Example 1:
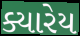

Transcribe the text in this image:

ક્યારેય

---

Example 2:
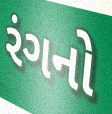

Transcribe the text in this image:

રંગનો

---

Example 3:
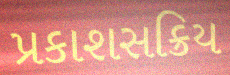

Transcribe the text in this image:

પ્રકાશસક્રિય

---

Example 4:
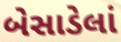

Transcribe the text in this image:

બેસાડેલાં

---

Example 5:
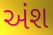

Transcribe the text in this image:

અંશ